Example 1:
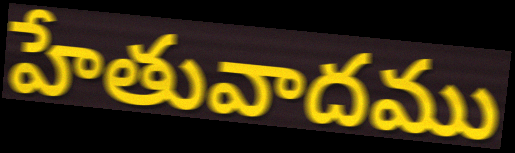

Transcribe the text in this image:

హేతువాదము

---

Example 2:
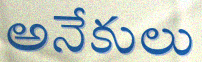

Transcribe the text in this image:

అనేకులు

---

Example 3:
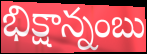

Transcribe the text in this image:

భిక్షాన్నంబు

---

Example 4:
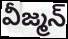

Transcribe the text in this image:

వీజ్మన్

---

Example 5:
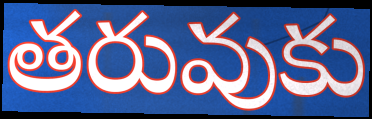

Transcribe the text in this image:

తరువుకు